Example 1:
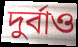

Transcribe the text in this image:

দুর্বাও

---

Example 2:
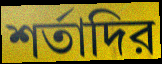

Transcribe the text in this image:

শর্তাদির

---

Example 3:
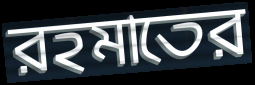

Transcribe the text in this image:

রহমাতের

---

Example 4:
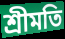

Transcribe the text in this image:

শ্রীমতি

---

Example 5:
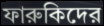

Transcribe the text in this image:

ফারুকিদের